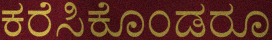
ಕರೆಸಿಕೊಂಡರೂ